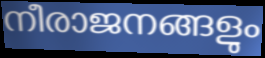
നീരാജനങ്ങളും